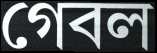
গেবল